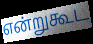
என்றுகூட